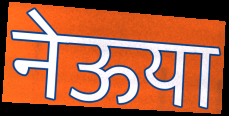
नेऊया